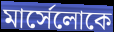
মার্সেলোকে